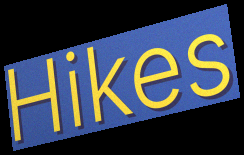
Hikes